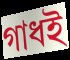
গাধই